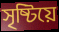
সৃষ্টিয়ে